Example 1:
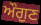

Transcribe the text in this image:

ਔਗੁਣ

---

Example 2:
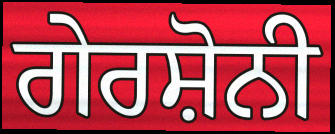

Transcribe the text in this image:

ਗੇਰਸ਼ੋਨੀ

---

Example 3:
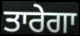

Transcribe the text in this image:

ਤਾਰੇਗਾ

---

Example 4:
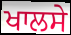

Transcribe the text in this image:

ਖਾਲਸੇ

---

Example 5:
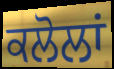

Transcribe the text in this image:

ਕਲੋਲਾਂ